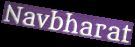
Navbharat